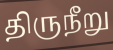
திருநீறு